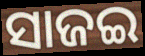
ସାଜଇ